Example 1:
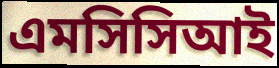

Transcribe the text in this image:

এমসিসিআই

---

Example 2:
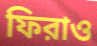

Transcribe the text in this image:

ফিরাও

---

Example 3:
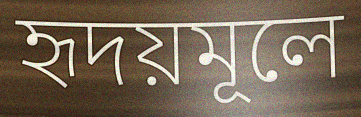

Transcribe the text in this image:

হৃদয়মূলে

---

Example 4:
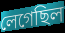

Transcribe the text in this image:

লেগেছিল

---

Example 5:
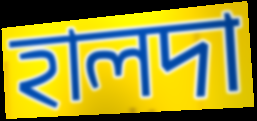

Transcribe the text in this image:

হালদা